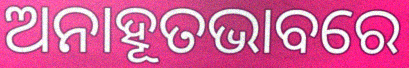
ଅନାହୂତଭାବରେ